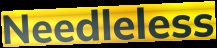
Needleless